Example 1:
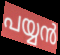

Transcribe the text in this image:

പയ്യൻ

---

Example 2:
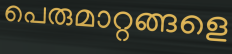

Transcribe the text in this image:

പെരുമാറ്റങ്ങളെ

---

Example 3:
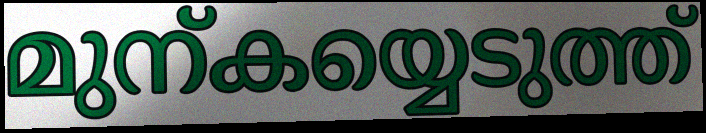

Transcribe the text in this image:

മുന്കയ്യെടുത്ത്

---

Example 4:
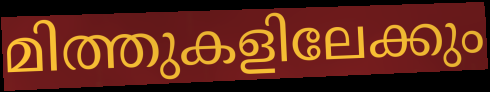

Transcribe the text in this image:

മിത്തുകളിലേക്കും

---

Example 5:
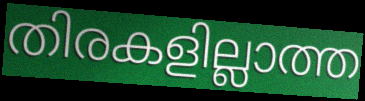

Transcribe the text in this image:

തിരകളില്ലാത്ത